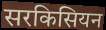
सरकिसियन